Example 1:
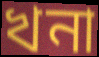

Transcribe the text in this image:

খনা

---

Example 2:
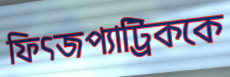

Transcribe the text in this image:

ফিৎজপ্যাট্রিককে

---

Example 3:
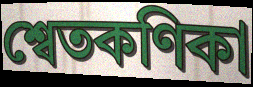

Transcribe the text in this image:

শ্বেতকণিকা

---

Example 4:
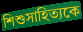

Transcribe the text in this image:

শিশুসাহিত্যকে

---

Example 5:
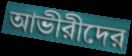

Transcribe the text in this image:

আভীরীদের